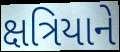
ક્ષત્રિયાને